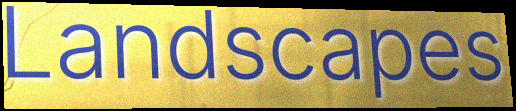
Landscapes